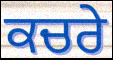
ਕਚਰੇ